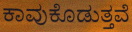
ಕಾವುಕೊಡುತ್ತವೆ